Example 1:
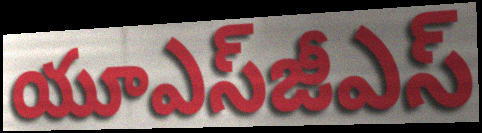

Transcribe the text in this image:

యూఎస్‌జీఎస్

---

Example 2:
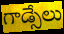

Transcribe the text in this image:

గాడ్సేలు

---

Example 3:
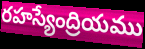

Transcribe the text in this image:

రహస్యేంద్రియము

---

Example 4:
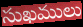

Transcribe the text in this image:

సుఖములు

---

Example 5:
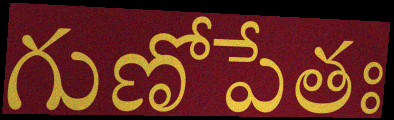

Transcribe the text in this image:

గుణోపేతః